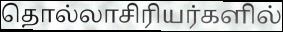
தொல்லாசிரியர்களில்